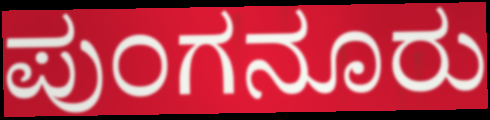
ಪುಂಗನೂರು